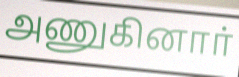
அணுகினார்